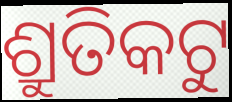
ଶ୍ରୁତିକଟୁ